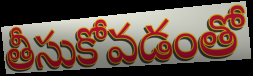
తీసుకోవడంతో